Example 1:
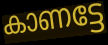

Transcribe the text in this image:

കാണട്ടേ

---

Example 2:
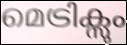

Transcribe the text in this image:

മെട്രിക്സും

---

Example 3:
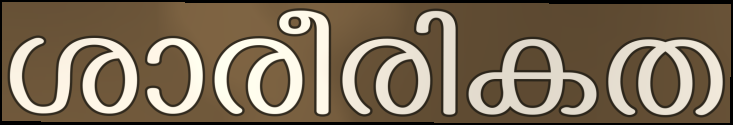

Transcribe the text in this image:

ശാരീരികത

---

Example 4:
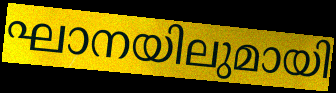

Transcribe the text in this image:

ഘാനയിലുമായി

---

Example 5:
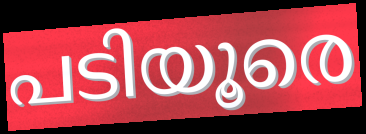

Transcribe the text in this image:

പടിയൂരെ